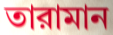
তারামান